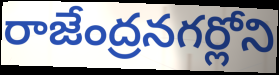
రాజేంద్రనగర్లోని